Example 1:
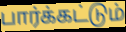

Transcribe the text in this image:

பார்க்கட்டும்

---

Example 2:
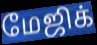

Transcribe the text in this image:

மேஜிக்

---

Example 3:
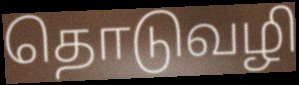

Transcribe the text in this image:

தொடுவழி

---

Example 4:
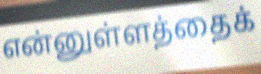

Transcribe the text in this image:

என்னுள்ளத்தைக்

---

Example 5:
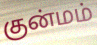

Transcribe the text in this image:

குன்மம்